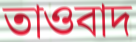
তাওবাদ